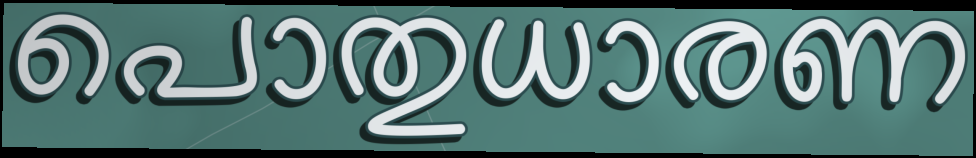
പൊതുധാരണ